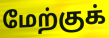
மேற்குக்